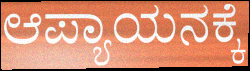
ಆಪ್ಯಾಯನಕ್ಕೆ